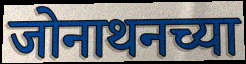
जोनाथनच्या